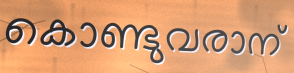
കൊണ്ടുവരാന്